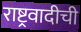
राष्ट्रवादीची